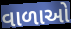
વાળાઓ